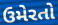
ઉમેરતો